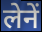
लेनें